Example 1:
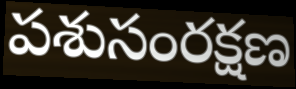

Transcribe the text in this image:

పశుసంరక్షణ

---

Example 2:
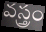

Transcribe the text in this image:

వస్త్రం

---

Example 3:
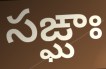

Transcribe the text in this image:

సఙ్ఘాః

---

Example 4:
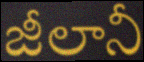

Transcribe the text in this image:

జీలానీ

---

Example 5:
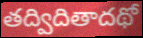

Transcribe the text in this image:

తద్విదితాదథో